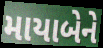
માયાબેને